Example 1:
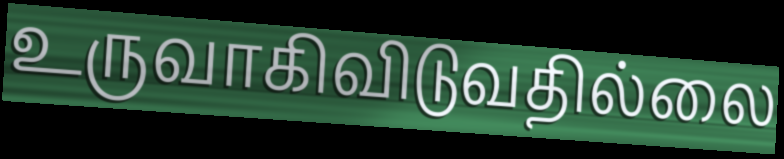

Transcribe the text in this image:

உருவாகிவிடுவதில்லை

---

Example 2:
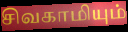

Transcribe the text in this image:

சிவகாமியும்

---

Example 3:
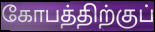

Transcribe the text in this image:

கோபத்திற்குப்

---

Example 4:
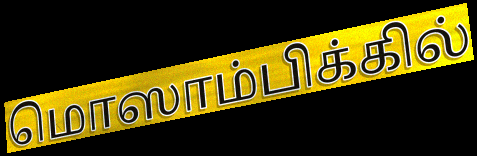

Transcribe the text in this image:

மொஸாம்பிக்கில்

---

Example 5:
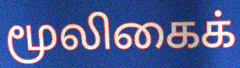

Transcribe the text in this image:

மூலிகைக்